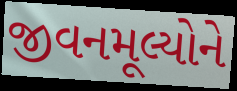
જીવનમૂલ્યોને